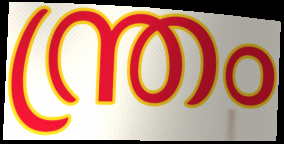
ന്ത്രം